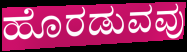
ಹೊರಡುವವು